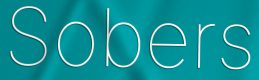
Sobers